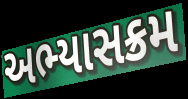
અભ્યાસક્રમ